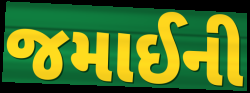
જમાઈની